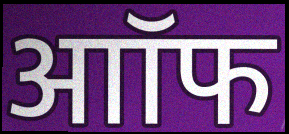
आॉफ